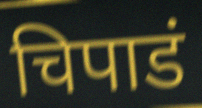
चिपाडं